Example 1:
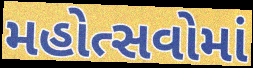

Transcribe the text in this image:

મહોત્સવોમાં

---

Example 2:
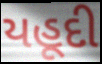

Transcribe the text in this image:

યહૂદી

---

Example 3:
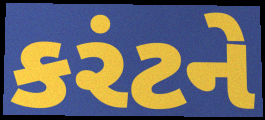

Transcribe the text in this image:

કરંટને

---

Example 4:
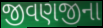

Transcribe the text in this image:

જીવણજીના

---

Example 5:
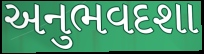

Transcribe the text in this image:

અનુભવદશા